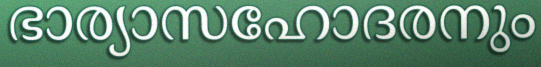
ഭാര്യാസഹോദരനും